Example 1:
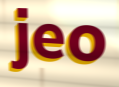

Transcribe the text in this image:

jeo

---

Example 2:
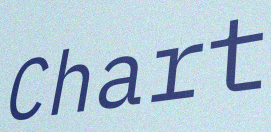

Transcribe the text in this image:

Chart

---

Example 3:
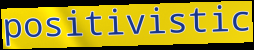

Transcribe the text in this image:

positivistic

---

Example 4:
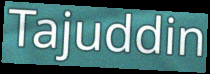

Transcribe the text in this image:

Tajuddin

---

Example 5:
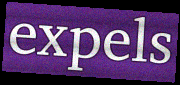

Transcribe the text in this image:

expels